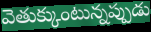
వెతుక్కుంటున్నప్పుడు